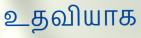
உதவியாக